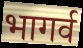
भागर्व